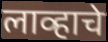
लाव्हाचे